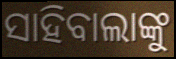
ସାହିବାଲାଙ୍କୁ